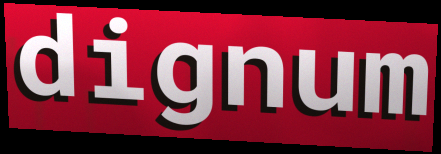
dignum